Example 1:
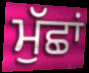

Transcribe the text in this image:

ਮੁੱਛਾਂ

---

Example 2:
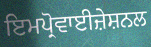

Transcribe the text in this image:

ਇਮਪ੍ਰੋਵਾਈਜ਼ੇਸ਼ਨਲ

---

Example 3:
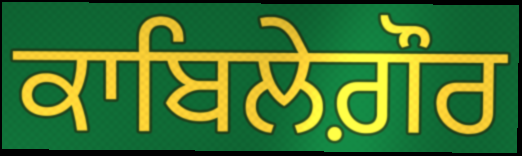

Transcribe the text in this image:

ਕਾਬਿਲੇਗ਼ੌਰ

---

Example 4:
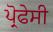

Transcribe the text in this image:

ਪ੍ਰੋਫੇਸੀ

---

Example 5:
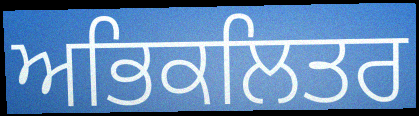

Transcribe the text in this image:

ਅਭਿਕਲਿਤਰ